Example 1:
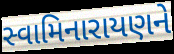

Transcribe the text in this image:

સ્વામિનારાયણને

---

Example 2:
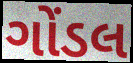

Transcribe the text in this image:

ગોંડલ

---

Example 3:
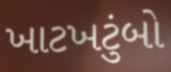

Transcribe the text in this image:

ખાટખટુંબો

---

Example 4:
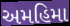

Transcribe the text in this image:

અમહિમા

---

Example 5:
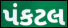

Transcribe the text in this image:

પંકટલ